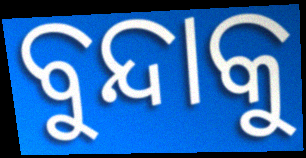
ବୁନ୍ଦାକୁ